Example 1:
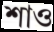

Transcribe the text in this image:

শাও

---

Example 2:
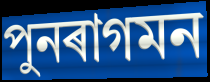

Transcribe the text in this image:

পুনৰাগমন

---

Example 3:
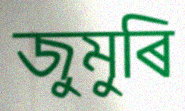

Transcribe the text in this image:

জুমুৰি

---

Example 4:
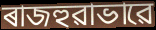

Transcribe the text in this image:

ৰাজহুৱাভাৱে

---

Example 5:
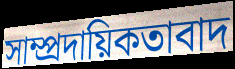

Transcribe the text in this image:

সাম্প্ৰদায়িকতাবাদ